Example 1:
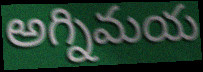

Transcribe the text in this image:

అగ్నిమయ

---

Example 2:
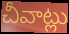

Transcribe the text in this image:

చీవాట్లు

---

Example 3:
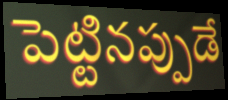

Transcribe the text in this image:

పెట్టినప్పుడే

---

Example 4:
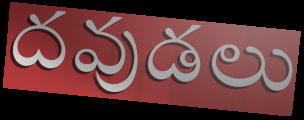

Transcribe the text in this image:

దవుడలు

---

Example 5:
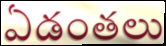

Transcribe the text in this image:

ఏడంతలు